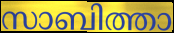
സാബിത്താ